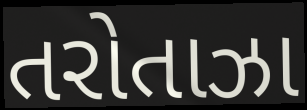
તરોતાઝા